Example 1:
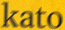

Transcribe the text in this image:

kato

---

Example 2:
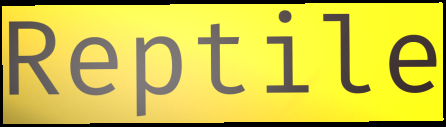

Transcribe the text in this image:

Reptile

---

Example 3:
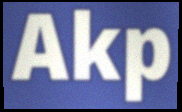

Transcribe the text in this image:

Akp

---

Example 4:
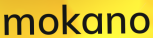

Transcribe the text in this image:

mokano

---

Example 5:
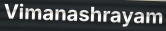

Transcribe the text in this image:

Vimanashrayam